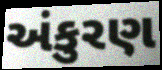
અંકુરણ